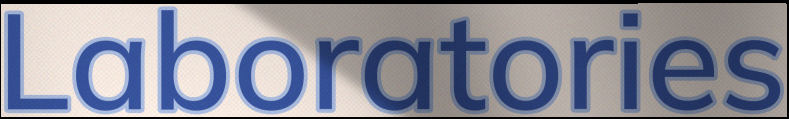
Laboratories